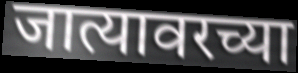
जात्यावरच्या